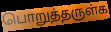
பொறுத்தருள்க